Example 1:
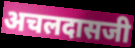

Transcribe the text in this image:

अचलदासजी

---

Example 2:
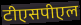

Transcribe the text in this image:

टीएसपीएल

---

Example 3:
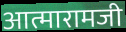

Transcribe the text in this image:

आत्मारामजी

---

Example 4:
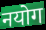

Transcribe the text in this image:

नयोग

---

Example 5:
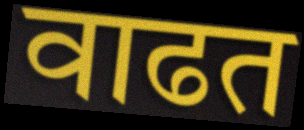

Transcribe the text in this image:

वाढत